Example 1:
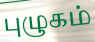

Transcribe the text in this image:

புழுகம்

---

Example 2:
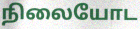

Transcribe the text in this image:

நிலையோட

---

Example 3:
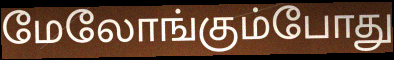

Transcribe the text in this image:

மேலோங்கும்போது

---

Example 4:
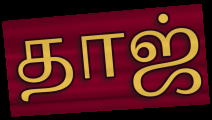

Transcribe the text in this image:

தாஜ்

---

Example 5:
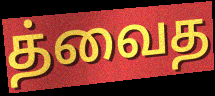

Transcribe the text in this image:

த்வைத